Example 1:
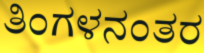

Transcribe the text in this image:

ತಿಂಗಳನಂತರ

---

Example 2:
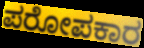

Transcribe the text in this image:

ಪರೋಪಕಾರ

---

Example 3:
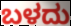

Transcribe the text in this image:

ಬಳದು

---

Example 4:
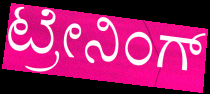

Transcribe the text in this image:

ಟ್ರೇನಿಂಗ್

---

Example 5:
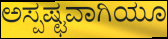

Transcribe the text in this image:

ಅಸ್ಪಷ್ಟವಾಗಿಯೂ